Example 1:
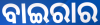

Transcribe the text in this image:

ବାଇରାର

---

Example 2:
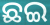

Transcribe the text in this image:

ଛଇ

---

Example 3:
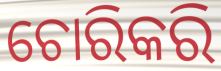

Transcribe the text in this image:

ଚୋରିକରି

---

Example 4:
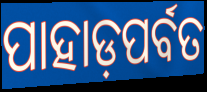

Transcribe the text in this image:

ପାହାଡ଼ପର୍ବତ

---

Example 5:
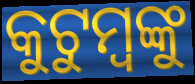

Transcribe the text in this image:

କୁଟୁମ୍ବଙ୍କୁ